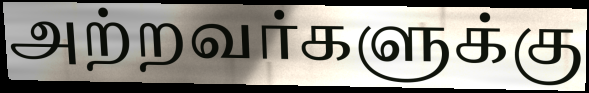
அற்றவர்களுக்கு